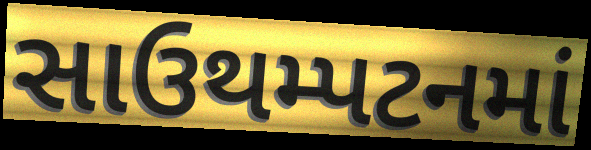
સાઉથમ્પટનમાં